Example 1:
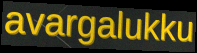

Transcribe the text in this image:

avargalukku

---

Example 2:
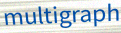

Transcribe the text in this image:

multigraph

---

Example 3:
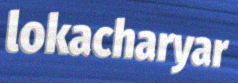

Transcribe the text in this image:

lokacharyar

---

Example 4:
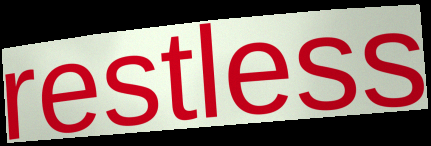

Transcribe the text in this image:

restless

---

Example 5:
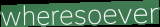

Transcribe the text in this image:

wheresoever